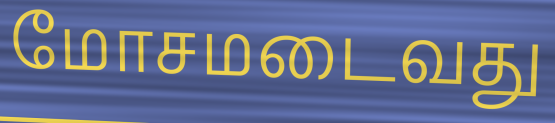
மோசமடைவது